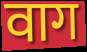
वाग